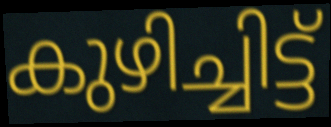
കുഴിച്ചിട്ട്